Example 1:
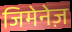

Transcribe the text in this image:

जिमेनेज़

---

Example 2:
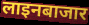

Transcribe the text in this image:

लाइनबाजार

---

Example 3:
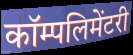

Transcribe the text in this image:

कॉम्पलिमेंटरी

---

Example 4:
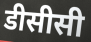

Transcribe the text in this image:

डीसीसी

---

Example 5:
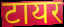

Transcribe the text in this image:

टायर